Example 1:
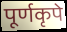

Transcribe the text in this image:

पूर्णकृपे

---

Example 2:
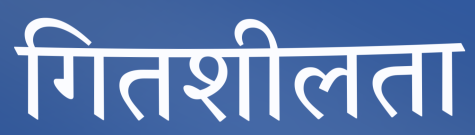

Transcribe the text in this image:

गितशीलता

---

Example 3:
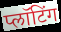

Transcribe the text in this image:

प्लॉटिंग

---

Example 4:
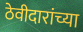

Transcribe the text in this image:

ठेवीदारांच्या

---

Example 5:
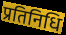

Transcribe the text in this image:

प्रतिनिधि